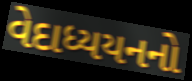
વેદાધ્યયનનો